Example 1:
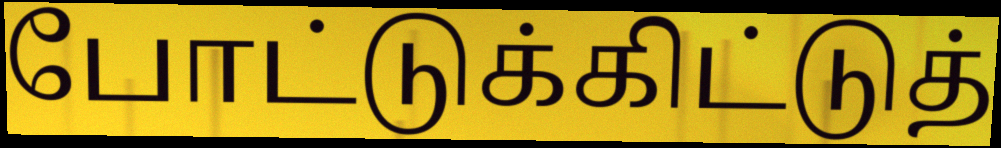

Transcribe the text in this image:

போட்டுக்கிட்டுத்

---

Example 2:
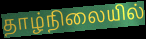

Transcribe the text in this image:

தாழ்நிலையில்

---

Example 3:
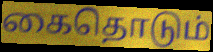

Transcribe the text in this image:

கைதொடும்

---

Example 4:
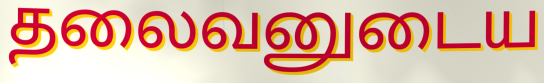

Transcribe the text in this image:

தலைவனுடைய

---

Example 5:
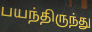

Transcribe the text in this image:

பயந்திருந்து